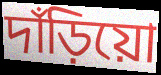
দাঁড়িয়ো